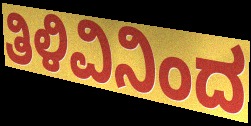
ತಿಳಿವಿನಿಂದ